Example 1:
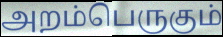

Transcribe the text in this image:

அறம்பெருகும்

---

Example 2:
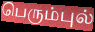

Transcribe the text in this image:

பெரும்புல்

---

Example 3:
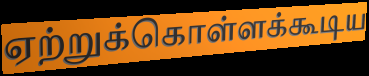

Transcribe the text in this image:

ஏற்றுக்கொள்ளக்கூடிய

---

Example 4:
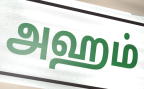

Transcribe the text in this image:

அஹம்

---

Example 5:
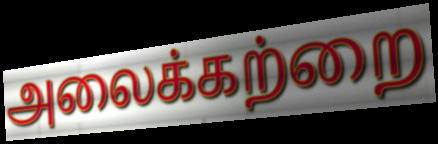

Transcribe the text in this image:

அலைக்கற்றை